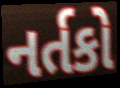
નર્તકો